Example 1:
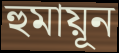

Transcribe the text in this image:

হুমায়ূন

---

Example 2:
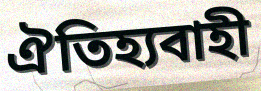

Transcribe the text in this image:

ঐতিহ্যবাহী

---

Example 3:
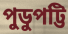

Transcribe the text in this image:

পুডুপট্টি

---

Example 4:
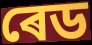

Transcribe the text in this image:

ৰেড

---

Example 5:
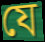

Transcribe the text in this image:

যে